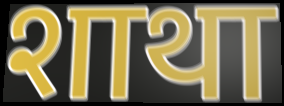
शाथा